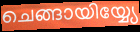
ചെങ്ങായിയ്യ്യേ